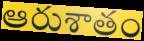
ఆరుశాతం